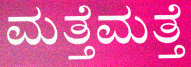
ಮತ್ತೆಮತ್ತೆ